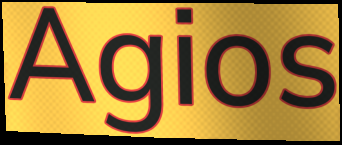
Agios